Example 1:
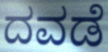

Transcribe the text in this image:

ದವಡೆ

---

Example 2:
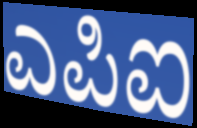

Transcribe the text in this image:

ಎಪಿಐ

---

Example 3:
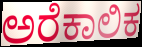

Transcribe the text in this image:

ಅರೆಕಾಲಿಕ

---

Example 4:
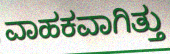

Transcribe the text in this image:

ವಾಹಕವಾಗಿತ್ತು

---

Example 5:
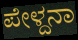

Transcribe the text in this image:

ಪೇಳ್ದನಾ